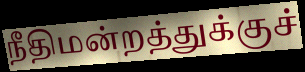
நீதிமன்றத்துக்குச்